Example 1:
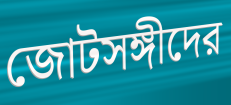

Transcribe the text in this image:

জোটসঙ্গীদের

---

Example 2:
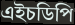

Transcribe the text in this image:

এইচডিপি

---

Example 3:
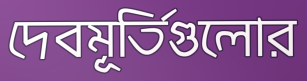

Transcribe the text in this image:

দেবমূর্তিগুলোর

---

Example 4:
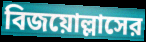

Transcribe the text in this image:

বিজয়োল্লাসের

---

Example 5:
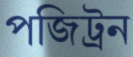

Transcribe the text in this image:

পজিট্রন